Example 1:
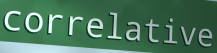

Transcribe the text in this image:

correlative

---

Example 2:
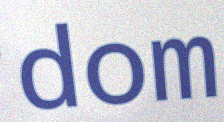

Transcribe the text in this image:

dom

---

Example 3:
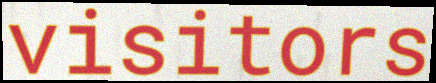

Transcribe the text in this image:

visitors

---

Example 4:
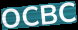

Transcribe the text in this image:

OCBC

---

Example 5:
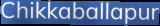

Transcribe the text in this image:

Chikkaballapur